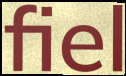
fiel